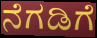
ನೆಗಡಿಗೆ